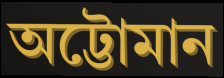
অট্টোমান